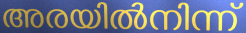
അരയിൽനിന്ന്